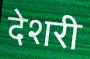
देशरी